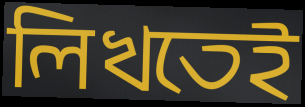
লিখতেই